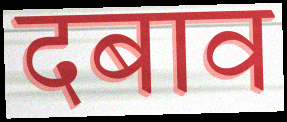
दबाव